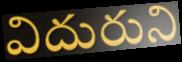
విదురుని